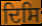
ਦਿਸਿ